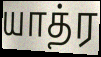
யாத்ர